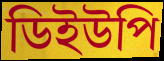
ডিইউপি